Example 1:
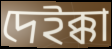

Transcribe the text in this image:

দেইক্কা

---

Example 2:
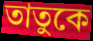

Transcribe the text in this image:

তাতুকে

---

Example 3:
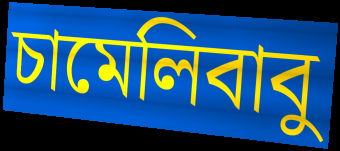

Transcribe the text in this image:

চামেলিবাবু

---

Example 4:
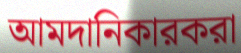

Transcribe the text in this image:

আমদানিকারকরা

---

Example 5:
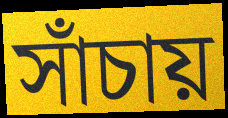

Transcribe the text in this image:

সাঁচায়